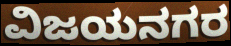
ವಿಜಯನಗರ